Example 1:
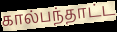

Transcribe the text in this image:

கால்பந்தாட்ட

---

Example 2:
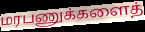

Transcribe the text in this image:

மரபணுக்களைத்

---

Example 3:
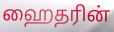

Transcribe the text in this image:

ஹைதரின்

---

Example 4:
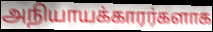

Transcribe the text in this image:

அநியாயக்காரர்களாக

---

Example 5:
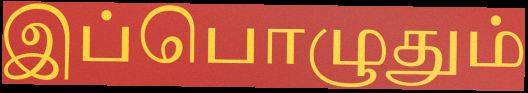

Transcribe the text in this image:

இப்பொழுதும்